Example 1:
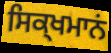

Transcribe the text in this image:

ਸਿਕ੍ਖਮਾਨਂ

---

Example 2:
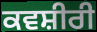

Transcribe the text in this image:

ਕਵਸ਼ੀਰੀ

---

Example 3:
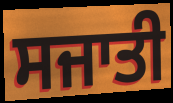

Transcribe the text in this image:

ਸਜਾਤੀ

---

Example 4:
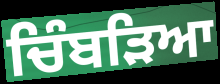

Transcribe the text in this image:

ਚਿੰਬੜਿਆ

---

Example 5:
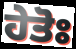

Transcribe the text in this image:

ਹੇਤੋਃ